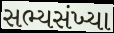
સભ્યસંખ્યા